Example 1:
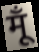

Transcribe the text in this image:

मूँ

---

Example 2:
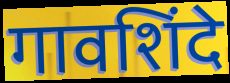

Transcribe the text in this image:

गावशिंदे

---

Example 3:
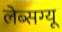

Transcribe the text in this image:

लेब्सग्यू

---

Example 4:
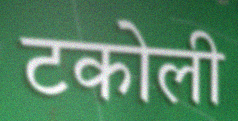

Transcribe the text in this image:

टकोली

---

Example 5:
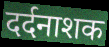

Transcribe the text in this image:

दर्दनाशक